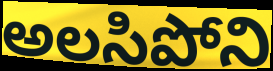
అలసిపోని